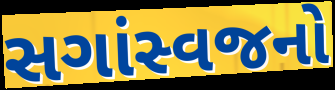
સગાંસ્વજનો